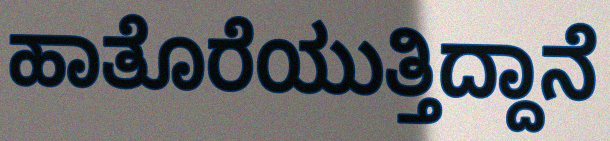
ಹಾತೊರೆಯುತ್ತಿದ್ದಾನೆ